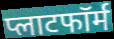
प्लाटफॉर्म